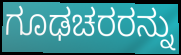
ಗೂಢಚರರನ್ನು